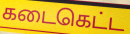
கடைகெட்ட